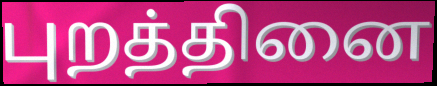
புறத்தினை